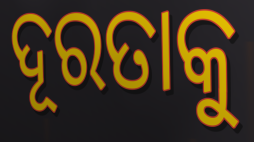
ଦୂରତାକୁ